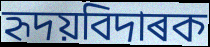
হৃদয়বিদাৰক